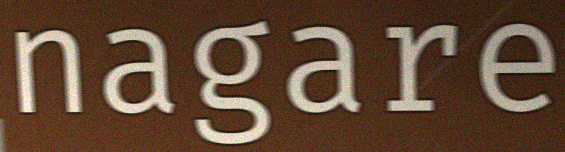
nagare